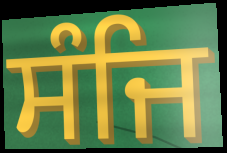
ਸੰਜਿ